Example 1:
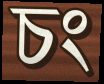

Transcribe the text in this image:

চং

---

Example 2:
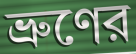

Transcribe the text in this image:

ভ্রুণের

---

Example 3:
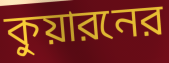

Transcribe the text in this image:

কুয়ারনের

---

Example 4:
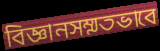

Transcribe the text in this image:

বিজ্ঞানসম্মতভাবে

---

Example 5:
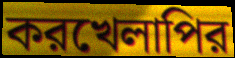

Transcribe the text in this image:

করখেলাপির